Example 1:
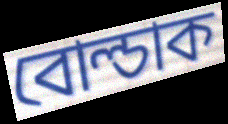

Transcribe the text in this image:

বোল্ডাক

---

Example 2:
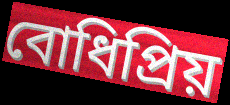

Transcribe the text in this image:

বোধিপ্রিয়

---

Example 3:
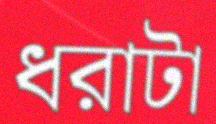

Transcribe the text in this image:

ধরাটা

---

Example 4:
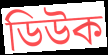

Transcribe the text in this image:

ডিউক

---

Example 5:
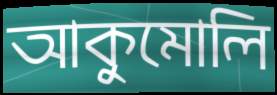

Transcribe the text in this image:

আকুমোলি